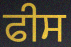
ਫੀਸ